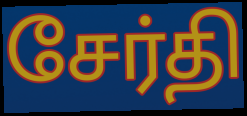
சேர்தி